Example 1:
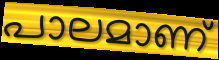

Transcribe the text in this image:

പാലമാണ്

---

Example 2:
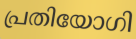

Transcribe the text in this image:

പ്രതിയോഗി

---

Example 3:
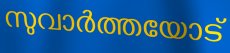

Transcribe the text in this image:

സുവാർത്തയോട്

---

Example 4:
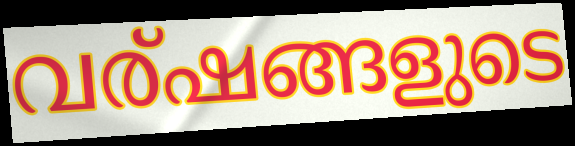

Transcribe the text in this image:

വര്ഷങ്ങളുടെ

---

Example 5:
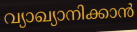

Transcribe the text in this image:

വ്യാഖ്യാനിക്കാൻ